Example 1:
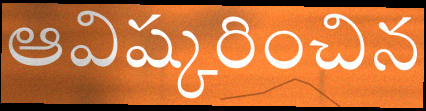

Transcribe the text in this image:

ఆవిష్కరించిన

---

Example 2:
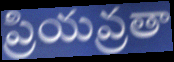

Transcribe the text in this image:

ప్రియవ్రతా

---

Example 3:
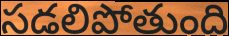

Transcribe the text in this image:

సడలిపోతుంది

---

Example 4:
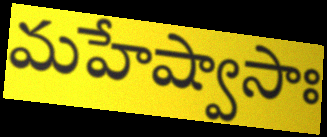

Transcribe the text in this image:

మహేష్వాసాః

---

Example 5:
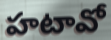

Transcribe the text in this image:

హటావో